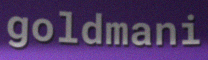
goldmani